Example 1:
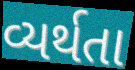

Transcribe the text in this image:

વ્યર્થતા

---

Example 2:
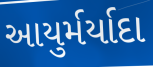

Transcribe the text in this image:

આયુર્મર્યાદા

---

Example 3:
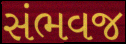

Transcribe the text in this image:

સંભવજ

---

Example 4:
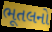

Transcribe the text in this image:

ભૂતલનો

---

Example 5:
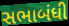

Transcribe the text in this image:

સભાબંધી